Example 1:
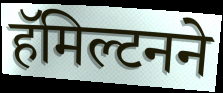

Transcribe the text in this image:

हॅमिल्टनने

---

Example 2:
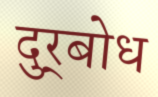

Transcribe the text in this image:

दुर्बोध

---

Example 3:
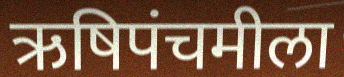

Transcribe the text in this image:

ऋषिपंचमीला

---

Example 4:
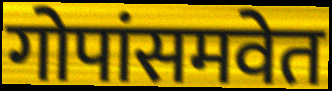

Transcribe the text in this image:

गोपांसमवेत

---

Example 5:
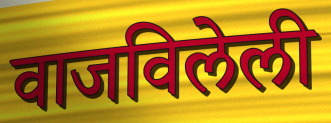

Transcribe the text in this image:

वाजविलेली